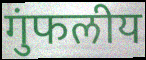
गुंफलीय